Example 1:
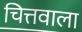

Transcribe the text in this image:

चित्तवाला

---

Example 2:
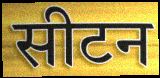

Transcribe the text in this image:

सीटन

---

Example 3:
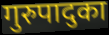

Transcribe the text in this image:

गुरुपादुका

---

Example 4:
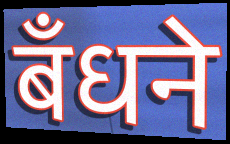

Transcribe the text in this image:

बँधने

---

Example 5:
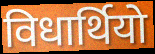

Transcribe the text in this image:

विधार्थियो